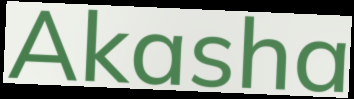
Akasha